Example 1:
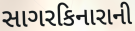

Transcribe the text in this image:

સાગરકિનારાની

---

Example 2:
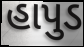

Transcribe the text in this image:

હાપુડ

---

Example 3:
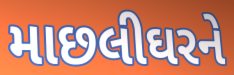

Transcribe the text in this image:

માછલીઘરને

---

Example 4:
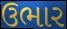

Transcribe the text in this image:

ઉભાર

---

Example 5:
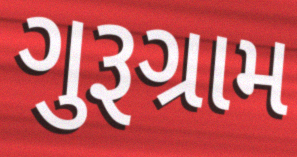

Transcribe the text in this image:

ગુરૂગ્રામ